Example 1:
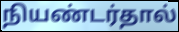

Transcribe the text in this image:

நியண்டர்தால்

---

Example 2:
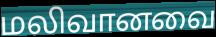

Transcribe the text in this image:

மலிவானவை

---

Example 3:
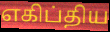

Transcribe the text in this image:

எகிப்திய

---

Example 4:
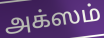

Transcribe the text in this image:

அக்ஸம்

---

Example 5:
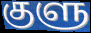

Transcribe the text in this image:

குளு